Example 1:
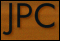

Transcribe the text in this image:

JPC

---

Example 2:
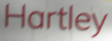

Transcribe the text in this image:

Hartley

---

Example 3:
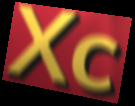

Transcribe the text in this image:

Xc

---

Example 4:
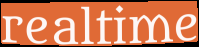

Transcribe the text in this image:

realtime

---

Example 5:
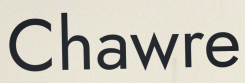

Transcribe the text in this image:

Chawre